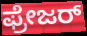
ಫ್ರೇಜರ್